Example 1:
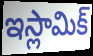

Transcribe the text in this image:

ఇస్లామిక్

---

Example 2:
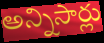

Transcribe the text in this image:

అన్నిసార్లు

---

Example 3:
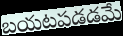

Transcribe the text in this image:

బయటపడడమే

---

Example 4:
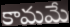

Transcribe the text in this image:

కామమే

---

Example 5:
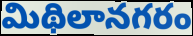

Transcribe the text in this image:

మిథిలానగరం